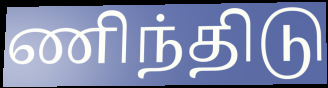
ணிந்திடு